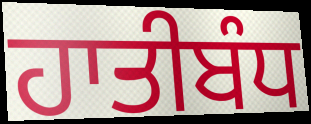
ਹਾਤੀਬੰਧ